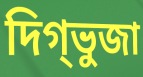
দিগ্ভুজা